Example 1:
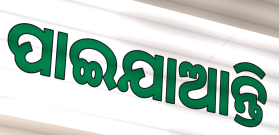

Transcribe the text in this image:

ପାଇଯାଆନ୍ତି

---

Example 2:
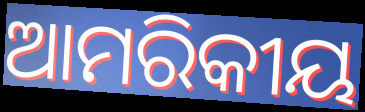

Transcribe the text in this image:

ଆମରିକୀୟ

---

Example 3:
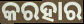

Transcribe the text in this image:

କରହାର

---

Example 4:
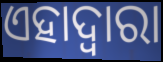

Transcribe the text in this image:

ଏହାଦ୍ୱାରା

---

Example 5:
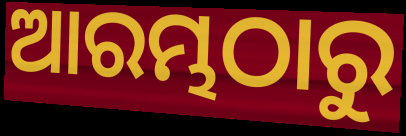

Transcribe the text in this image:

ଆରମ୍ଭଠାରୁ